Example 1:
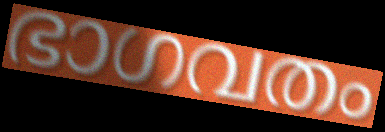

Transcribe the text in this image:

ഭാഗവതം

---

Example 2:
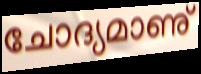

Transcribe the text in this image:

ചോദ്യമാണു്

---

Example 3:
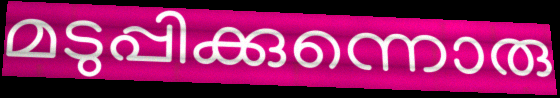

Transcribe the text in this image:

മടുപ്പിക്കുന്നൊരു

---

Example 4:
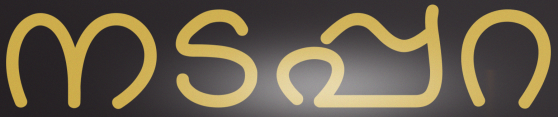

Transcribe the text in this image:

നടപ്പറ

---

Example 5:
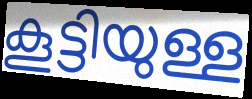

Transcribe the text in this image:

കൂട്ടിയുള്ള